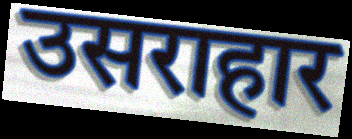
उसराहार